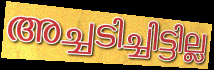
അച്ചടിച്ചിട്ടില്ല